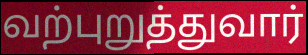
வற்புறுத்துவார்